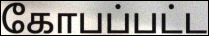
கோபப்பட்ட